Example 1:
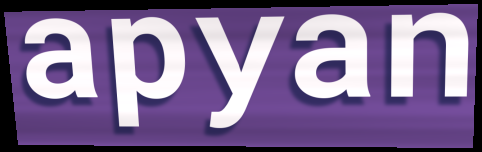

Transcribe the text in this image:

apyan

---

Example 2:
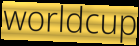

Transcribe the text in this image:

worldcup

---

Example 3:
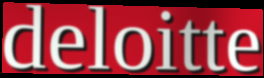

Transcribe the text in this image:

deloitte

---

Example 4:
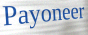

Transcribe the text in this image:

Payoneer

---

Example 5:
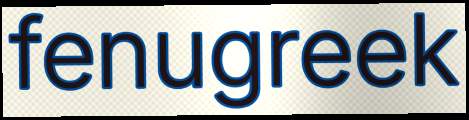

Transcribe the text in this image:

fenugreek